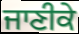
ਜਾਣੀਕੇ